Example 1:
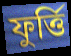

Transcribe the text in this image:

ফুৰ্ত্তি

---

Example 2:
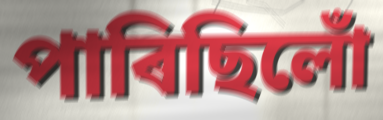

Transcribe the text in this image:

পাৰিছিলোঁ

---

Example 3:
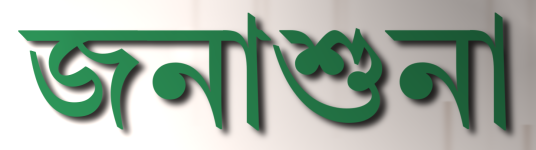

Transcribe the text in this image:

জনাশুনা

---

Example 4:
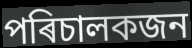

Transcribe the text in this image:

পৰিচালকজন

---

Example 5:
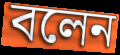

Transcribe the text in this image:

বলেন